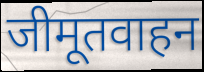
जीमूतवाहन